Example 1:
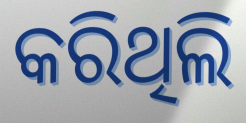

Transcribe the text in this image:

କରିଥିଲି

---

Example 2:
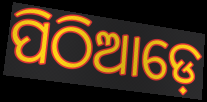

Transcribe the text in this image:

ପିଠିଆଡ଼େ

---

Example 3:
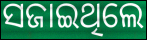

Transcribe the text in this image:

ସଜାଇଥିଲେ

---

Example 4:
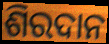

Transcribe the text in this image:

ଶିରଦାନ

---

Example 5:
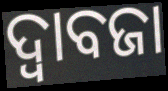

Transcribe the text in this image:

ଦ୍ୱାବଜା